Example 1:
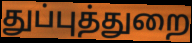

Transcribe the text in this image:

துப்புத்துறை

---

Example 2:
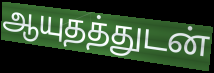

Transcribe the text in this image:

ஆயுதத்துடன்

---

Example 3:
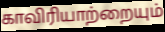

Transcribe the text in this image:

காவிரியாற்றையும்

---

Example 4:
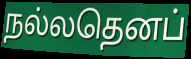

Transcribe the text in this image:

நல்லதெனப்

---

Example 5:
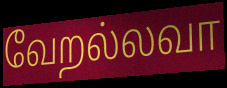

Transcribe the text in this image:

வேறல்லவா